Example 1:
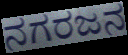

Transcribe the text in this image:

ನಗರಜನ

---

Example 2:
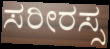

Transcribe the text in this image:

ಸರೀರಸ್ಸ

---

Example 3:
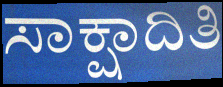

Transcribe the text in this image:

ಸಾಕ್ಷಾದಿತಿ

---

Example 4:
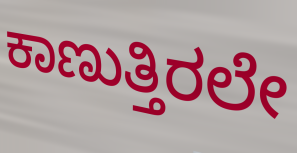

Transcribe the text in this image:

ಕಾಣುತ್ತಿರಲೇ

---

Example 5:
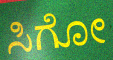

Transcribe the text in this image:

ಸಿಗೋ